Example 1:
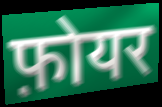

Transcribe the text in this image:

फ़ोयर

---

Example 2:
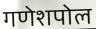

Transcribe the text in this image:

गणेशपोल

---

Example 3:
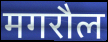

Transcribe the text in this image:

मगरौल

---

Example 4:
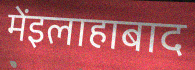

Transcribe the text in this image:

मेंइलाहाबाद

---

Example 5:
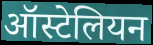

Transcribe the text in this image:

ऑस्टेलियन